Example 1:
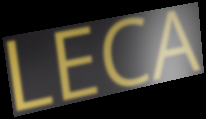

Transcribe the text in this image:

LECA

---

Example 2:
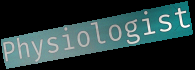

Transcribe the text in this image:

Physiologist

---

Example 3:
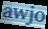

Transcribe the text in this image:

awjo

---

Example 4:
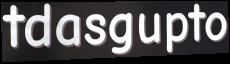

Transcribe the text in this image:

tdasgupto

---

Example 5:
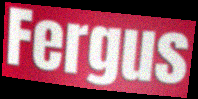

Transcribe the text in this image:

Fergus